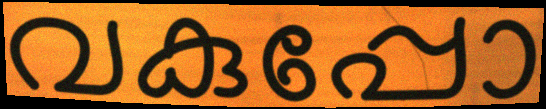
വകുപ്പോ